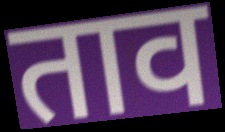
ताव